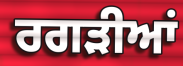
ਰਗੜੀਆਂ